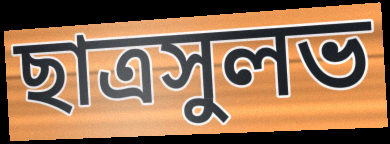
ছাত্রসুলভ